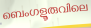
ബെംഗളൂരുവിലെ